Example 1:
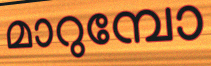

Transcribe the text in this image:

മാറുമ്പോ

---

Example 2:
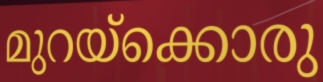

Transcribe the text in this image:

മുറയ്ക്കൊരു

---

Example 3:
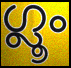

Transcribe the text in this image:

ഗ്ലൂം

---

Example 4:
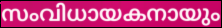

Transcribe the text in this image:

സംവിധായകനായും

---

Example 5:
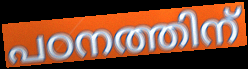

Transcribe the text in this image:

പഠനത്തിന്